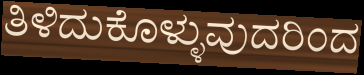
ತಿಳಿದುಕೊಳ್ಳುವುದರಿಂದ